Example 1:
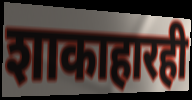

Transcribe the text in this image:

शाकाहारही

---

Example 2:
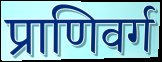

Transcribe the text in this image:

प्राणिवर्ग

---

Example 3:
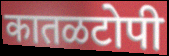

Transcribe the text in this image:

कातळटोपी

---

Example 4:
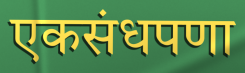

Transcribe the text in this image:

एकसंधपणा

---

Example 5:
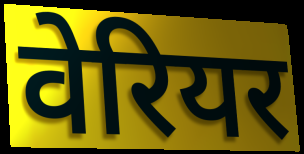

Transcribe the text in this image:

वेरियर